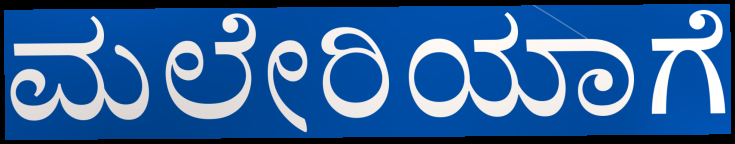
ಮಲೇರಿಯಾಗೆ